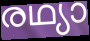
രഥ്യാ